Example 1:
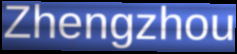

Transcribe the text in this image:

Zhengzhou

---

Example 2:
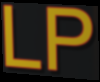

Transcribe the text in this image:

LP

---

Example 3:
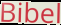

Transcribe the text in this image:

Bibel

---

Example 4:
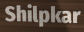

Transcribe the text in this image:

Shilpkar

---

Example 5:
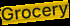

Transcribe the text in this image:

Grocery